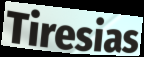
Tiresias